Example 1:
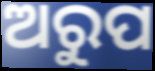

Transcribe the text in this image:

ଅରୁପ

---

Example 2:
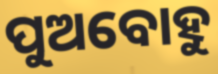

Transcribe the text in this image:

ପୁଅବୋହୁ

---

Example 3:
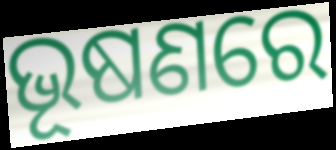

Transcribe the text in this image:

ଭୂଷଣରେ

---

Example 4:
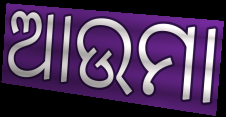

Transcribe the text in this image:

ଆଉମା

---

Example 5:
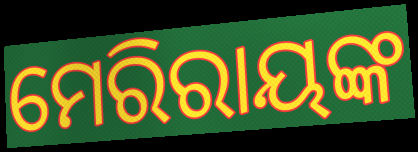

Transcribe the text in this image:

ମେରିରାୟଙ୍କ